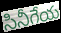
సినీగేయ